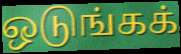
ஒடுங்கக்